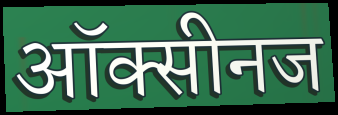
ऑक्सीनज